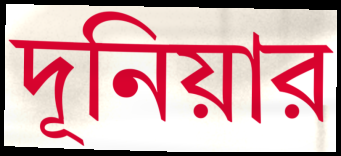
দূনিয়ার